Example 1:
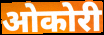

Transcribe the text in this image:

ओकोरी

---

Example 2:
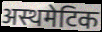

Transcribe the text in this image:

अस्थमेटिक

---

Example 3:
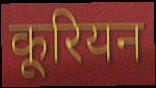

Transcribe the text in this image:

कूरियन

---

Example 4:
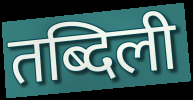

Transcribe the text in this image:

तब्दिली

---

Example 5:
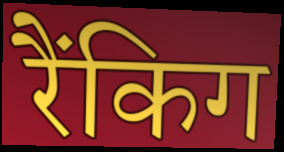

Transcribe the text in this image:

रैंकिग